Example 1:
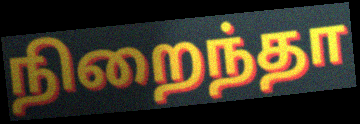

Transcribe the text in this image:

நிறைந்தா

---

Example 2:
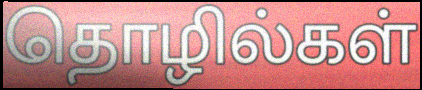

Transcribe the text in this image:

தொழில்கள்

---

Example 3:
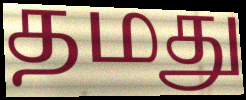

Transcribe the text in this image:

தமது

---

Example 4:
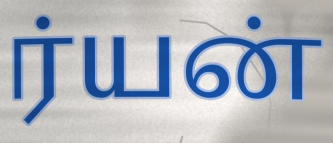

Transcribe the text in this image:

ர்யன்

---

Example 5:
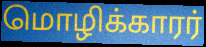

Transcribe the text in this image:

மொழிக்காரர்